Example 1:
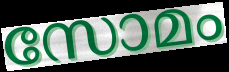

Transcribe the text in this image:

സോമം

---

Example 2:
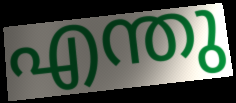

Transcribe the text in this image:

എന്തു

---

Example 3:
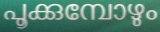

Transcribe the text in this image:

പൂക്കുമ്പോഴും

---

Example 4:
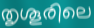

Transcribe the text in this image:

തൃശൂരിലെ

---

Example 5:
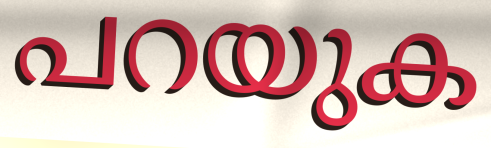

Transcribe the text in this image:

പറയുക